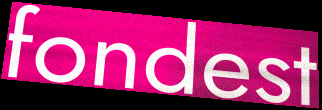
fondest